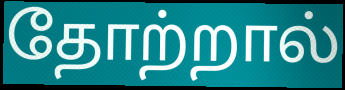
தோற்றால்